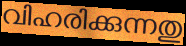
വിഹരിക്കുന്നതു